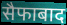
सैफाबाद